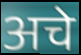
अचे